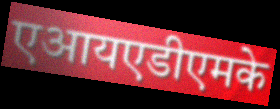
एआयएडीएमके